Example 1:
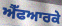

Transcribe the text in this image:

ਐੱਫਆਰਕੇ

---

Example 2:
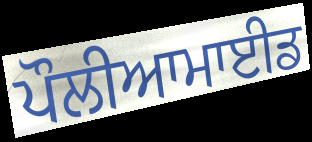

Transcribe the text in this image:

ਪੌਲੀਆਮਾਈਡ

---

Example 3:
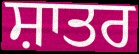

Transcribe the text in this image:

ਸ਼ਾਤਰ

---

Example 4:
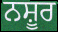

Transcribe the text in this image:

ਨਸ਼ੂਰ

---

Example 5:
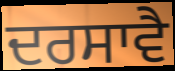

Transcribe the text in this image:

ਦਰਸਾਵੈ